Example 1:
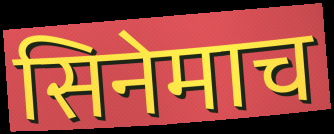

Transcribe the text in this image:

सिनेमाच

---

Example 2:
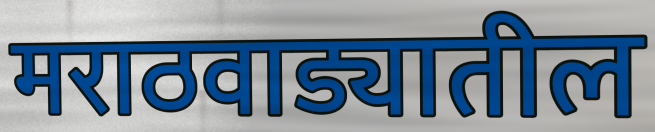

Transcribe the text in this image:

मराठवाड्यातील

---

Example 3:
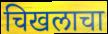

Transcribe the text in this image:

चिखलाचा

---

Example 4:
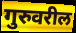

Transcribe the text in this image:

गुरुवरील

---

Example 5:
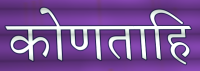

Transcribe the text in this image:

कोणताहि